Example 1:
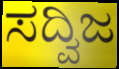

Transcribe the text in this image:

ಸದ್ವಿಜ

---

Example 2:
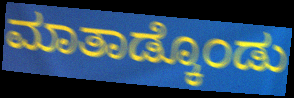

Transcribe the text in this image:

ಮಾತಾಡ್ಕೊಂಡು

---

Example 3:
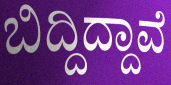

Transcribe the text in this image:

ಬಿದ್ದಿದ್ದಾವೆ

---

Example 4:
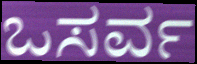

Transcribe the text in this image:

ಒಸರ್ವ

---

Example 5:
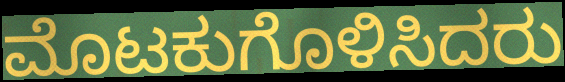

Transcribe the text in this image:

ಮೊಟಕುಗೊಳಿಸಿದರು